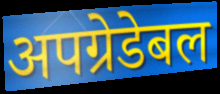
अपग्रेडेबल